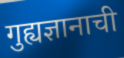
गुह्यज्ञानाची